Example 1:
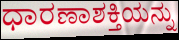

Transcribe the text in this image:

ಧಾರಣಾಶಕ್ತಿಯನ್ನು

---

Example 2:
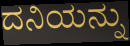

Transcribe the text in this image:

ದನಿಯನ್ನು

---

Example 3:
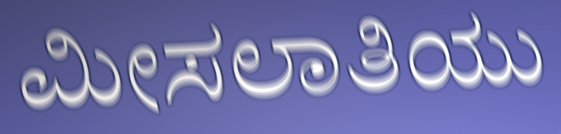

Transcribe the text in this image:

ಮೀಸಲಾತಿಯು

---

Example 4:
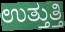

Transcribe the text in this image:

ಉತ್ತುತ್ತಿ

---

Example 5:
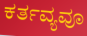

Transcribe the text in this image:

ಕರ್ತವ್ಯವೂ